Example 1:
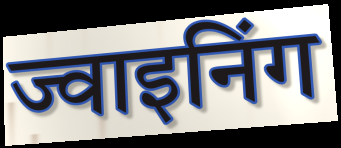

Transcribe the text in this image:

ज्वाइनिंग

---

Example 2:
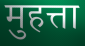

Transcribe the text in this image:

मुहत्ता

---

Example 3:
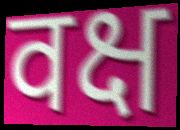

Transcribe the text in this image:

वक्ष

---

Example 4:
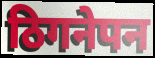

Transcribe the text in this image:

ठिगनेपन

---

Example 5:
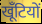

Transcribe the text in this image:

खूँटियों